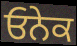
ਓਨੇਕ